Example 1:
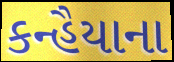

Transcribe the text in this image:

કન્હૈયાના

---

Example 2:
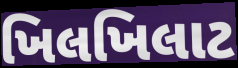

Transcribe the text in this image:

ખિલખિલાટ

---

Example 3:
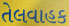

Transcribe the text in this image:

તેલવાહક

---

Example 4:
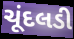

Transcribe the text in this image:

ચૂંદલડી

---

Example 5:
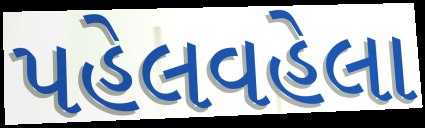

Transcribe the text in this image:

પહેલવહેલા